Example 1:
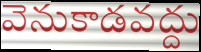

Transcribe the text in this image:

వెనుకాడవద్దు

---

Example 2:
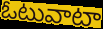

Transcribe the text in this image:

ఓటువాటా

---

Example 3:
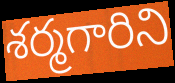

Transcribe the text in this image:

శర్మగారిని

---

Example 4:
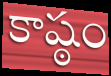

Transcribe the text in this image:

కాష్ఠం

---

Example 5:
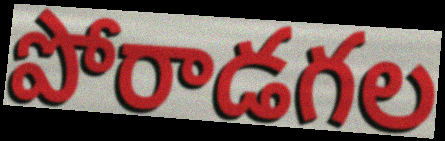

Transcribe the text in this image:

పోరాడగల